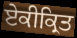
ਏਕੀਕ੍ਰਿਤ